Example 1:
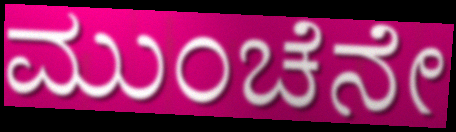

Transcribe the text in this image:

ಮುಂಚೆನೇ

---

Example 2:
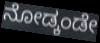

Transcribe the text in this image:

ನೋಡ್ಕಂಡೇ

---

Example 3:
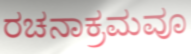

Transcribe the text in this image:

ರಚನಾಕ್ರಮವೂ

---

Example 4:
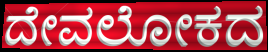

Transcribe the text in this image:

ದೇವಲೋಕದ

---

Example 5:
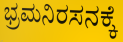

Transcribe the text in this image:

ಭ್ರಮನಿರಸನಕ್ಕೆ